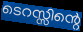
ടെറസ്സിന്റെ